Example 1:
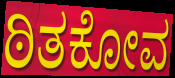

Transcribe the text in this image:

ಠಿತಕೋವ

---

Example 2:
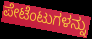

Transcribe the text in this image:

ಪೇಟೆಂಟುಗಳನ್ನು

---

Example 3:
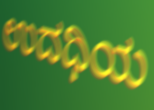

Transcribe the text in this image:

ಉದಧಿಯ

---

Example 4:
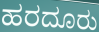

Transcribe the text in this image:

ಹರದೂರು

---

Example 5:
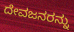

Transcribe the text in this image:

ದೇವಜನರನ್ನು